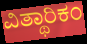
ವಿತ್ಥಾರಿಕಂ